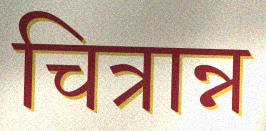
चित्रान्न